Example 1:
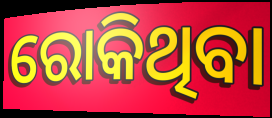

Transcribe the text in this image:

ରୋକିଥିବା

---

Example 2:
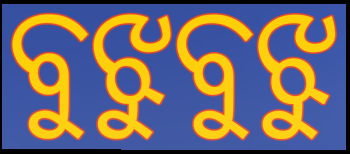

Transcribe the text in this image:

ବୁଝୁବୁଝୁ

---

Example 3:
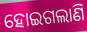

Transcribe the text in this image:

ହୋଇଗଲାଣି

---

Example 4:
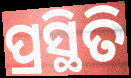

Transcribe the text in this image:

ପ୍ରସ୍ଥିତି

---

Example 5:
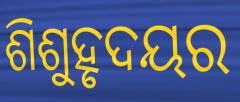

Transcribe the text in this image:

ଶିଶୁହୃଦୟର